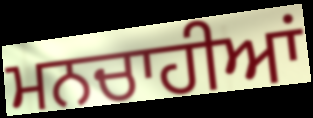
ਮਨਚਾਹੀਆਂ